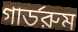
গার্ডরুম